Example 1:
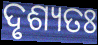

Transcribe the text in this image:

ଦୃଶ୍ୟତଃ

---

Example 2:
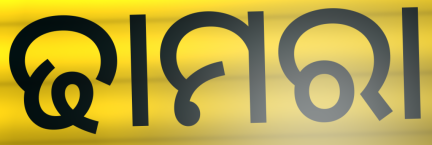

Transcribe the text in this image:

ଢାମରା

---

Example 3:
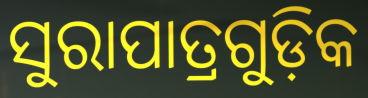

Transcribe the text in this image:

ସୁରାପାତ୍ରଗୁଡ଼ିକ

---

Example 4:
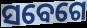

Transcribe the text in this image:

ସବେଗେ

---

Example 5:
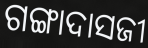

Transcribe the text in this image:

ଗଙ୍ଗାଦାସଜୀ